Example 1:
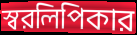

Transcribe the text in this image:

স্বরলিপিকার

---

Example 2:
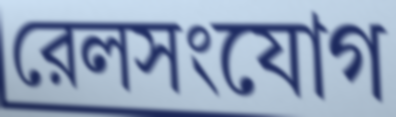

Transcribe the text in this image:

রেলসংযোগ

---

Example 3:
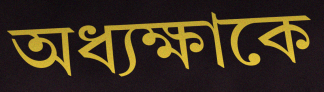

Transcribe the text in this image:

অধ্যক্ষাকে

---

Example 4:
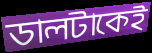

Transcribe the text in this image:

ডালটাকেই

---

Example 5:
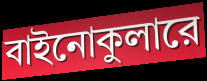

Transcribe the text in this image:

বাইনোকুলারে